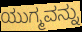
ಯುಗ್ಮವನ್ನು